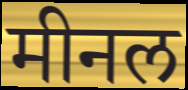
मीनल